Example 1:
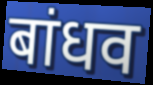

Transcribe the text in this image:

बांधव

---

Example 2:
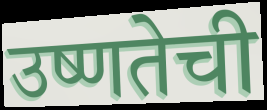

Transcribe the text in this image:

उष्णतेची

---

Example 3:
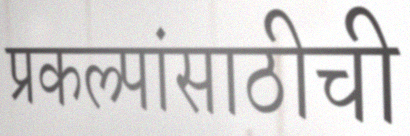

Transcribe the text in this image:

प्रकल्पांसाठीची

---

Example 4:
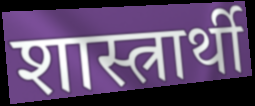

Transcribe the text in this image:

शास्त्रार्थी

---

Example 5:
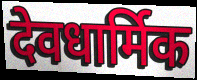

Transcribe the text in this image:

देवधार्मिक